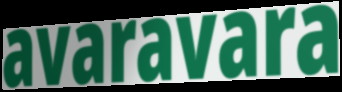
avaravara